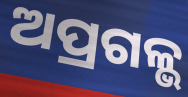
ଅପ୍ରଗଳ୍ଭ